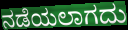
ನಡೆಯಲಾಗದು